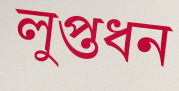
লুপ্তধন